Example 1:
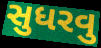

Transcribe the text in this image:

સુધરવુ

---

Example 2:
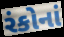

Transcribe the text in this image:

રંકોનાં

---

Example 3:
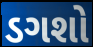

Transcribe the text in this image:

ડગશો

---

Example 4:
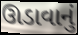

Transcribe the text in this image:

ઊડાવાનું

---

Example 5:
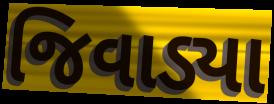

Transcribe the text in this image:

જિવાડ્યા